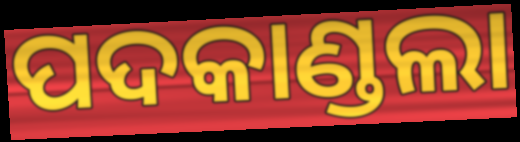
ପଦକାଣ୍ଡଲା